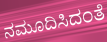
ನಮೂದಿಸಿದಂತೆ